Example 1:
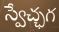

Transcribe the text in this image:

స్వేచ్ఛగ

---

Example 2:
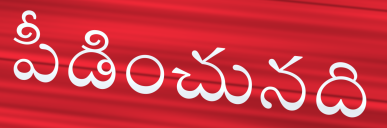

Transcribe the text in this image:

పీడించునది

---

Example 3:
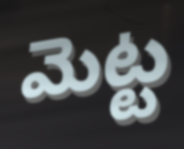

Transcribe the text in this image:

మెట్ట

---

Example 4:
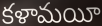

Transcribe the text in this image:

కళామయీ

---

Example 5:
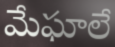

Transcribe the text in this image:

మేఘాలే